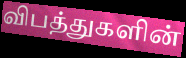
விபத்துகளின்